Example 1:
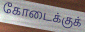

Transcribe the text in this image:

கோடைக்குக்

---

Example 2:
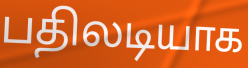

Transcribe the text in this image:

பதிலடியாக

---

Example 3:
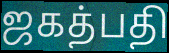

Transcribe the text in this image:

ஜகத்பதி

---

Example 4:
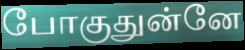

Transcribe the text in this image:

போகுதுன்னே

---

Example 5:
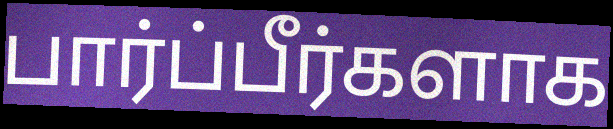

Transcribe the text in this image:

பார்ப்பீர்களாக